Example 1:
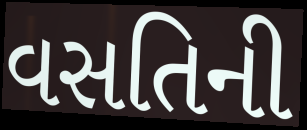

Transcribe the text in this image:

વસતિની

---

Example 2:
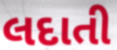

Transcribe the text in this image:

લદાતી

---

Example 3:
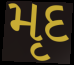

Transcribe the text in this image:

મૃદ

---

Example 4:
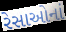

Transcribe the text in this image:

રેસાઓનાં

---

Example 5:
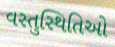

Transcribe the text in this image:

વસ્તુસ્થિતિઓ